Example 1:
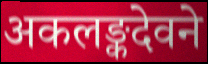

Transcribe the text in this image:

अकलङ्कदेवने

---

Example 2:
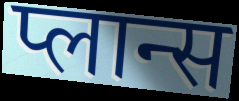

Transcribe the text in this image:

प्लान्स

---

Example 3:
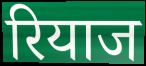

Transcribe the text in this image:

रियाज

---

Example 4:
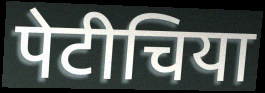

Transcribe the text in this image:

पेटीचिया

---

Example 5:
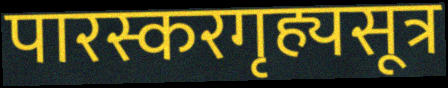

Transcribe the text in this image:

पारस्करगृह्यसूत्र